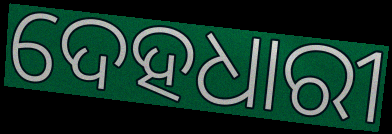
ଦେହଧାରୀ